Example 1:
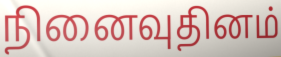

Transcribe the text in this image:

நினைவுதினம்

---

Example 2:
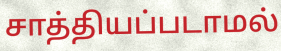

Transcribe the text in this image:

சாத்தியப்படாமல்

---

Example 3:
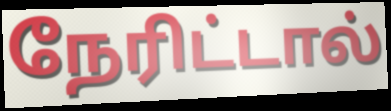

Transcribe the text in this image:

நேரிட்டால்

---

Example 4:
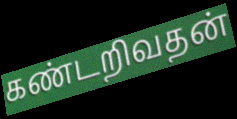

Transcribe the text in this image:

கண்டறிவதன்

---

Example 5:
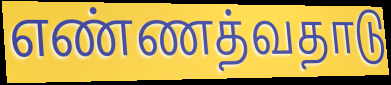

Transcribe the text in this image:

எண்ணத்வதாடு